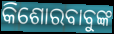
କିଶୋରବାବୁଙ୍କ